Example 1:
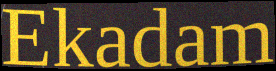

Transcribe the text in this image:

Ekadam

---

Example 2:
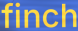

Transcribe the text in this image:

finch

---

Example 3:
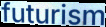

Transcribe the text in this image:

futurism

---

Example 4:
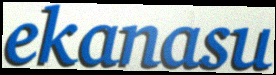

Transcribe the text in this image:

ekanasu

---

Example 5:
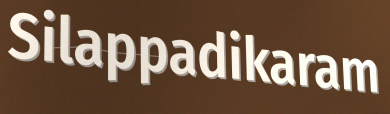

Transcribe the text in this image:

Silappadikaram